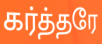
கர்த்தரே